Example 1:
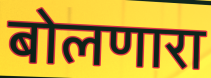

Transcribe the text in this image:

बोलणारा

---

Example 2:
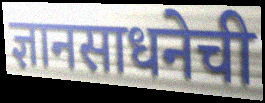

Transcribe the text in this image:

ज्ञानसाधनेची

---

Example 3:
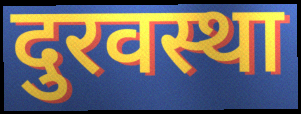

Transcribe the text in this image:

दुरवस्था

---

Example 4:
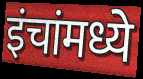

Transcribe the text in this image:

इंचांमध्ये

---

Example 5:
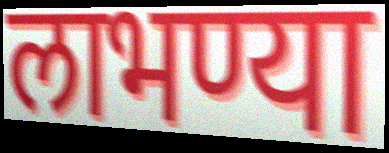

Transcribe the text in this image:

लाभण्या